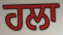
ਹਲਾ